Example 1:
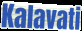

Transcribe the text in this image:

Kalavati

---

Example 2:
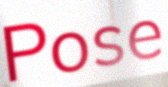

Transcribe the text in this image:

Pose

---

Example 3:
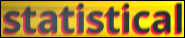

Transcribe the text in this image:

statistical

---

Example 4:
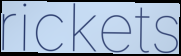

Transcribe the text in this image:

rickets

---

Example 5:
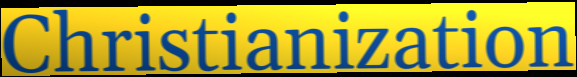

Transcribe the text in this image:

Christianization